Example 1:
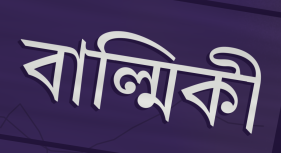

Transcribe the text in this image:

বাল্মিকী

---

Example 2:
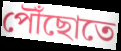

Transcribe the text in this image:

পৌঁছোতে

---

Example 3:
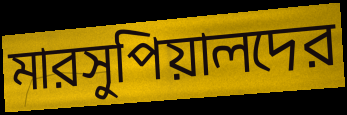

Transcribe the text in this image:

মারসুপিয়ালদের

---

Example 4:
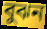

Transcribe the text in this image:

বুঝন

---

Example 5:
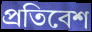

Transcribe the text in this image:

প্রতিবেশ